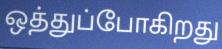
ஒத்துப்போகிறது